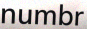
numbr